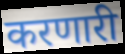
करणारी